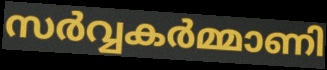
സർവ്വകർമ്മാണി